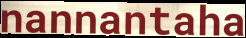
nannantaha